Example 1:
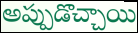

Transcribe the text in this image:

అప్పుడొచ్చాయి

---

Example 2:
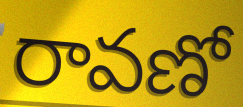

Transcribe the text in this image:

రావణో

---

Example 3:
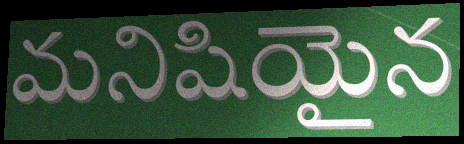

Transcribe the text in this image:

మనిషియైన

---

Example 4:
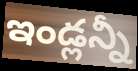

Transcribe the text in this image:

ఇండ్లన్నీ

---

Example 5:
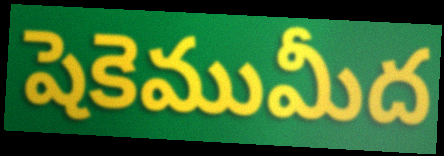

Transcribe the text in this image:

షెకెముమీద